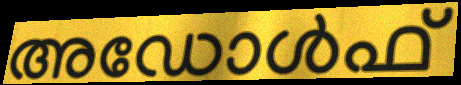
അഡോൾഫ്